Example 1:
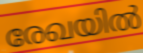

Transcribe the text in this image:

രേഖയിൽ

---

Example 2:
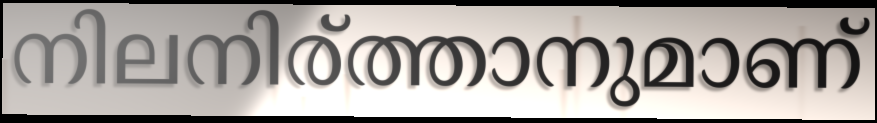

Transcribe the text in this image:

നിലനിര്ത്താനുമാണ്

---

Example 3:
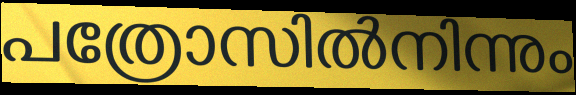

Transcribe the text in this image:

പത്രോസിൽനിന്നും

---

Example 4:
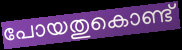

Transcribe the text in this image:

പോയതുകൊണ്ട്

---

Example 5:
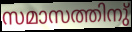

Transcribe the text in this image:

സമാസത്തിനു്